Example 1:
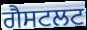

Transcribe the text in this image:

ਗੈਸਟਲਟ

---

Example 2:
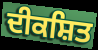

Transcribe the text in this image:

ਦੀਕਸ਼ਿਤ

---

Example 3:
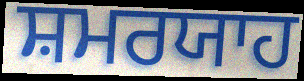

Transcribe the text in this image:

ਸ਼ਮਰਯਾਹ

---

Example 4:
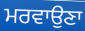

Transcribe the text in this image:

ਮਰਵਾਉਣਾ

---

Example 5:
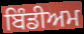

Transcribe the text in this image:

ਬਿੰਡੀਅਮ